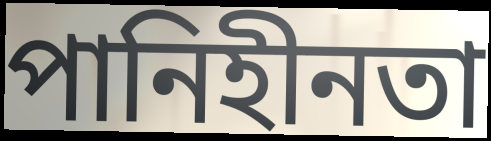
পানিহীনতা